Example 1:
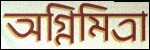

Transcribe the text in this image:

অগ্নিমিত্রা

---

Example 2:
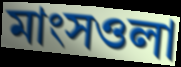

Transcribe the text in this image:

মাংসওলা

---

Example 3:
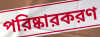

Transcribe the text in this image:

পরিষ্কারকরণ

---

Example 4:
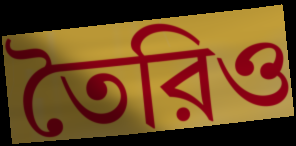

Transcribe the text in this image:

তৈরিও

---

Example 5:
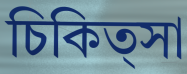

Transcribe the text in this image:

চিকিত্সা